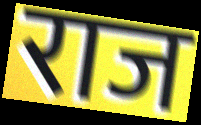
राज